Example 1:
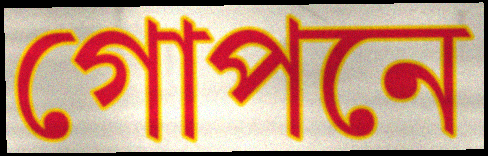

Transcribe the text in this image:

গোপনে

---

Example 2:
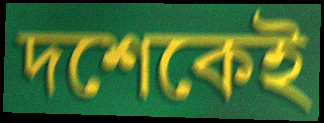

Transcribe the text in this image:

দশেকেই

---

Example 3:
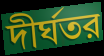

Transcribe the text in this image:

দীর্ঘতর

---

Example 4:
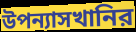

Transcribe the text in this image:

উপন্যাসখানির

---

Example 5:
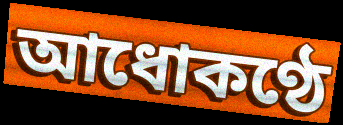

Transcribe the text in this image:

আধোকণ্ঠে